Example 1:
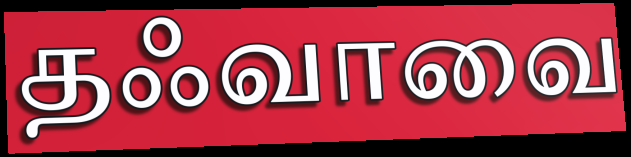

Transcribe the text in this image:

தஃவாவை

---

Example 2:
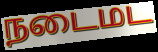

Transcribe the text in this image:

நடைமட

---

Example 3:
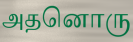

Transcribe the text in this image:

அதனொரு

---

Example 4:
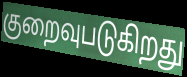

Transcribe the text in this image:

குறைவுபடுகிறது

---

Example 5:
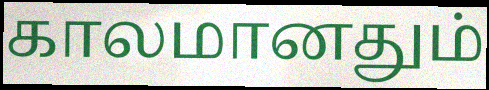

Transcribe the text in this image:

காலமானதும்